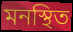
মনস্থিত